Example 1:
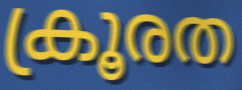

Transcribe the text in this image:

ക്രൂരത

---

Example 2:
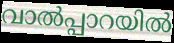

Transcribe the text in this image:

വാൽപ്പാറയിൽ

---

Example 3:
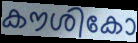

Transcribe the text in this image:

കൗശികോ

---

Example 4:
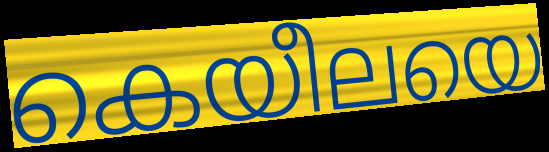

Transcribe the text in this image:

കെയീലയെ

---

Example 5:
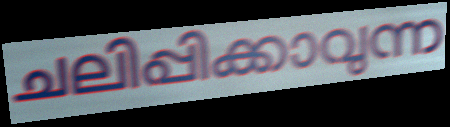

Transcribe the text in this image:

ചലിപ്പിക്കാവുന്ന